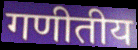
गणीतीय